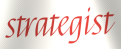
strategist